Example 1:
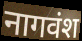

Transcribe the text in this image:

नागवंश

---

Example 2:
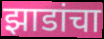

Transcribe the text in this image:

झाडांचा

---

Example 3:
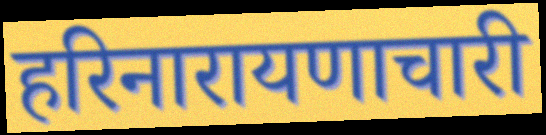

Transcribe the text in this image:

हरिनारायणाचारी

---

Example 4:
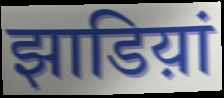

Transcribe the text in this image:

झाडिय़ां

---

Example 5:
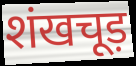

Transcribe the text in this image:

शंखचूड़